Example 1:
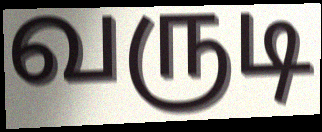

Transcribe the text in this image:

வருடி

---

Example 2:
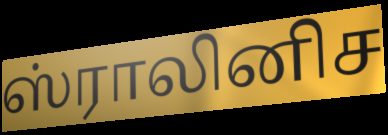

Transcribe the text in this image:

ஸ்ராலினிச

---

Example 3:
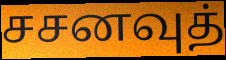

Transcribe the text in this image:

சசனவுத்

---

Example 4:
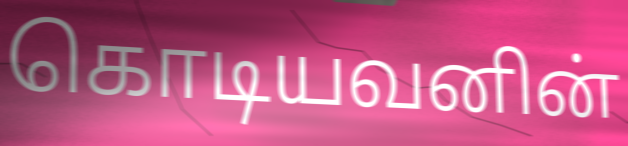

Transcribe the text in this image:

கொடியவனின்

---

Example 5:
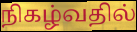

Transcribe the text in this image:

நிகழ்வதில்